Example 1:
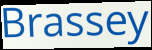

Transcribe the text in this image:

Brassey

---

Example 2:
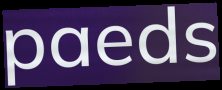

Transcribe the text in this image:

paeds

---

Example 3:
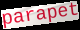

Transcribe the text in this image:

parapet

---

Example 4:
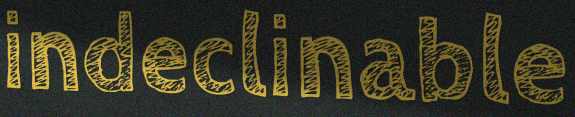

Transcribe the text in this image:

indeclinable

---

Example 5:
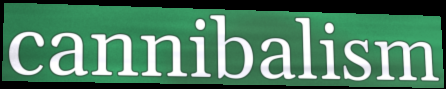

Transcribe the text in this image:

cannibalism